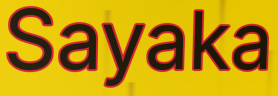
Sayaka